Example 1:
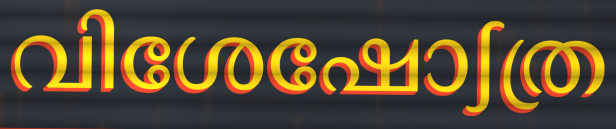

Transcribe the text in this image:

വിശേഷോഽത്ര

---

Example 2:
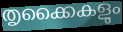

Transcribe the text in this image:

തൃക്കൈകളും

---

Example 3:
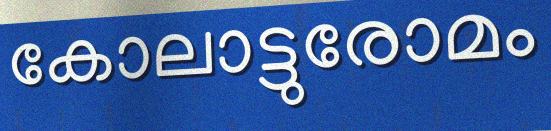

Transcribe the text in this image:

കോലാട്ടുരോമം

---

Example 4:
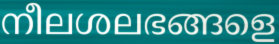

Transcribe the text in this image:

നീലശലഭങ്ങളെ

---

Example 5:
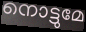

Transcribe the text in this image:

നൊട്ടുമേ